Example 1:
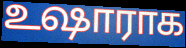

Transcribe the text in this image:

உஷாராக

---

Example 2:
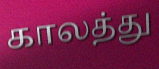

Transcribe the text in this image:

காலத்து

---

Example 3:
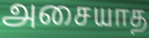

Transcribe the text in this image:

அசையாத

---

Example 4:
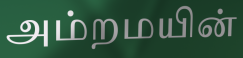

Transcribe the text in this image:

அம்றமயின்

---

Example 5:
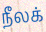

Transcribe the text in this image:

நீலக்